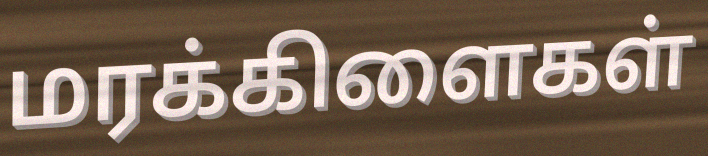
மரக்கிளைகள்